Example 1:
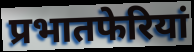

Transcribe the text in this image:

प्रभातफेरियां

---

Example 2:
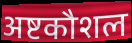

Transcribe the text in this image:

अष्टकौशल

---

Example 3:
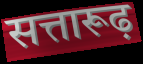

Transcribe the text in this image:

सत्तारूढ़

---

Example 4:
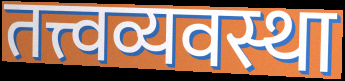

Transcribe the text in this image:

तत्त्वव्यवस्था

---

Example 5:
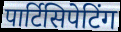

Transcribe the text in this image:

पार्टिसिपेटिंग